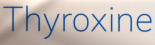
Thyroxine